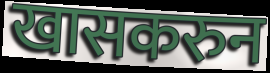
खासकरुन